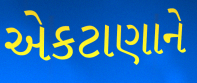
એકટાણાને